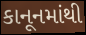
કાનૂનમાંથી